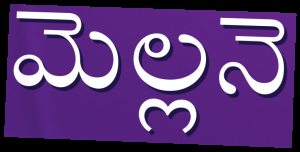
మెల్లనె